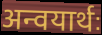
अन्वयार्थः